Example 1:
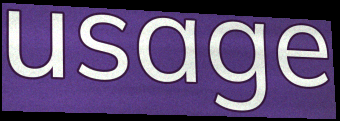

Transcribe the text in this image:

usage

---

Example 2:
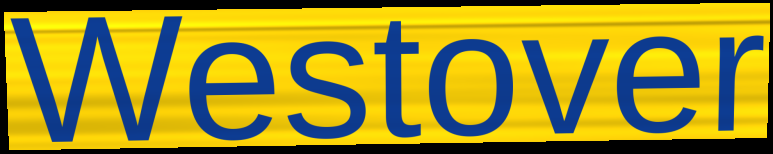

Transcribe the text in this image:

Westover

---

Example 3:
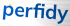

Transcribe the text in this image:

perfidy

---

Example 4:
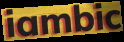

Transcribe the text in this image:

iambic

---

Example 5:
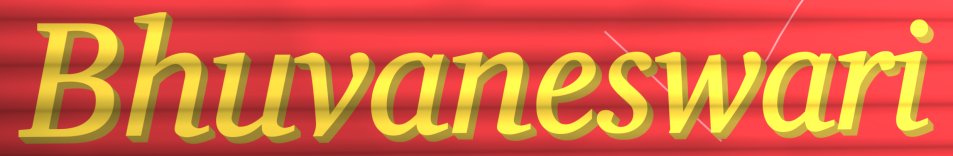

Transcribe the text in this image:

Bhuvaneswari